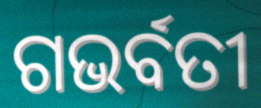
ଗଭର୍ବତୀ